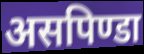
असपिण्डा